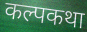
कल्पकथा